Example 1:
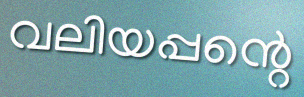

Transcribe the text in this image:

വലിയപ്പന്റെ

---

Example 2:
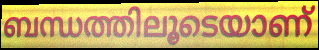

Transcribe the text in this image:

ബന്ധത്തിലൂടെയാണ്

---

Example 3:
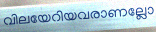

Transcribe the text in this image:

വിലയേറിയവരാണല്ലോ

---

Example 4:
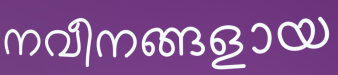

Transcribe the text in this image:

നവീനങ്ങളായ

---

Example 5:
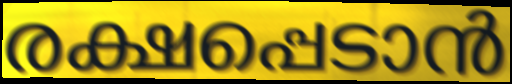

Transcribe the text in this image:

രക്ഷപ്പെടാൻ